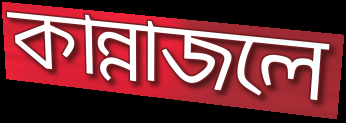
কান্নাজলে